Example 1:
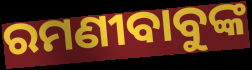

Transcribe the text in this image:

ରମଣୀବାବୁଙ୍କ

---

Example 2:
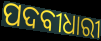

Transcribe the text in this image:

ପଦବୀଧାରୀ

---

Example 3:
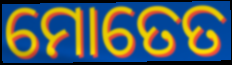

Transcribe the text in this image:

ମୋତେତ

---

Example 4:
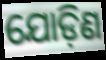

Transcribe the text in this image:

ଯୋଡ଼ିଣ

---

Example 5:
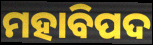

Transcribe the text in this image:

ମହାବିପଦ